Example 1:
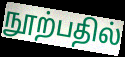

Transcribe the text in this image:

நூற்பதில்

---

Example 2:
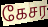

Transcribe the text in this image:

கேசர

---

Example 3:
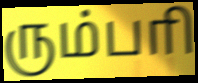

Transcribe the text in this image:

ரும்பரி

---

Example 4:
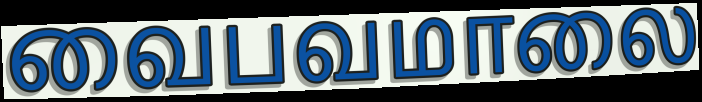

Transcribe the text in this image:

வைபவமாலை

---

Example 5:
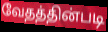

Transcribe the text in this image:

வேதத்தின்படி